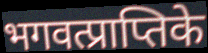
भगवत्प्राप्तिके